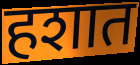
हशात